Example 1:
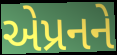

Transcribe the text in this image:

એપ્રનને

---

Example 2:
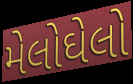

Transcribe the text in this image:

મેલોઘેલો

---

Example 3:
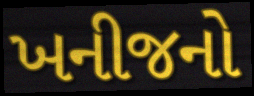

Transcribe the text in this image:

ખનીજનો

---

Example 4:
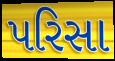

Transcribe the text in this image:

પરિસા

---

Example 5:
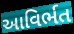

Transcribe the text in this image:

આવિર્ભત